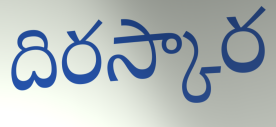
దిరస్కార